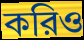
করিও